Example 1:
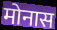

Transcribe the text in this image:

मोनास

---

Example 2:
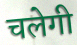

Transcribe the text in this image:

चलेगी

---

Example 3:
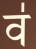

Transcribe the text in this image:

व॑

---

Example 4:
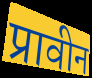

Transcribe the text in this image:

प्रावीन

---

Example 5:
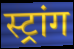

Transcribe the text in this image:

स्ट्रांग